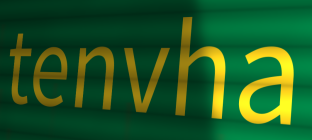
tenvha